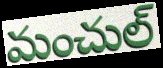
మంచుల్